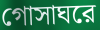
গোসাঘরে